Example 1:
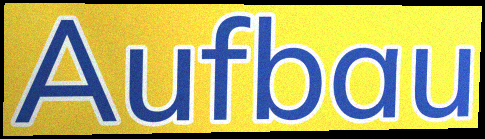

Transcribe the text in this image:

Aufbau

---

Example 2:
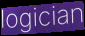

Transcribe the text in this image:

logician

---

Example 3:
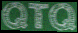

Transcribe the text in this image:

QTQ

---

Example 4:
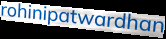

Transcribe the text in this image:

rohinipatwardhan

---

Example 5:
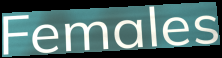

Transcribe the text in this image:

Females